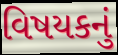
વિષયકનું